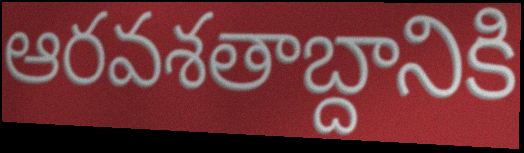
ఆరవశతాబ్దానికి